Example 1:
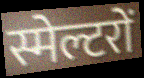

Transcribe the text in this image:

स्मेल्टरों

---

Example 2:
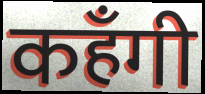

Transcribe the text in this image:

कहँगी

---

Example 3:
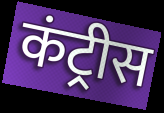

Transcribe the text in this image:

कंट्रीस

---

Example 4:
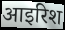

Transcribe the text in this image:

आइरिश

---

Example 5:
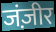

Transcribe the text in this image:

जंज़ीर